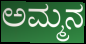
ಅಮ್ಮನ